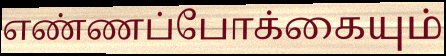
எண்ணப்போக்கையும்